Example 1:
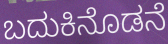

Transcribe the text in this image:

ಬದುಕಿನೊಡನೆ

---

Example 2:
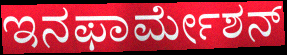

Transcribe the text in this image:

ಇನಫಾರ್ಮೇಶನ್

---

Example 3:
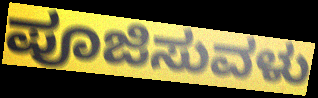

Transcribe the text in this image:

ಪೂಜಿಸುವಳು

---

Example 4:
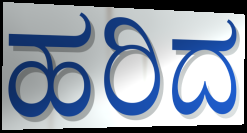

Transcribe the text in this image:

ಹರಿದ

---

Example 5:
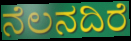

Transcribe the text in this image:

ನೆಲನದಿರೆ